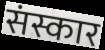
संस्‍कार